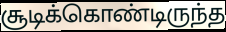
சூடிக்கொண்டிருந்த